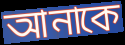
আনাকে